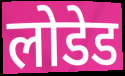
लोडेड